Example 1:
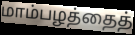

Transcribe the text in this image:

மாம்பழத்தைத்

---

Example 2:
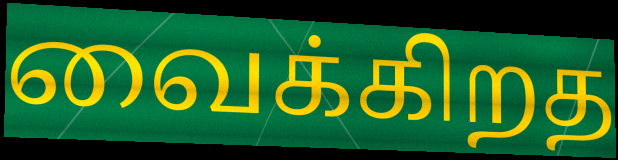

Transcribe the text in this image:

வைக்கிறத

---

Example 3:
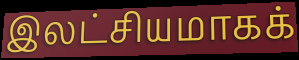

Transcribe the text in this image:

இலட்சியமாகக்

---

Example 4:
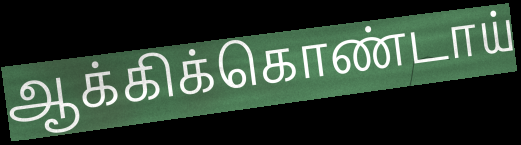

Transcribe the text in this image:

ஆக்கிக்கொண்டாய்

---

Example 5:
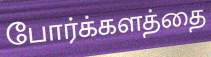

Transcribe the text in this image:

போர்க்களத்தை